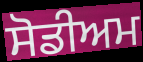
ਸੋਡੀਅਮ